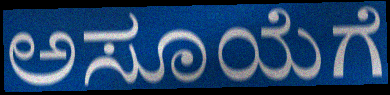
ಅಸೂಯೆಗೆ